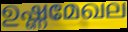
ഉഷ്ണമേഖല